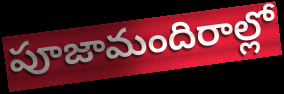
పూజామందిరాల్లో